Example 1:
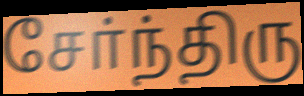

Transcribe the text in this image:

சேர்ந்திரு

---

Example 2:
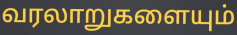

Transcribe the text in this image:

வரலாறுகளையும்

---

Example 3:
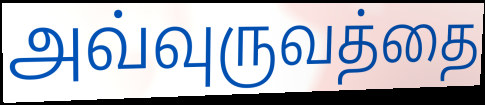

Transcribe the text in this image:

அவ்வுருவத்தை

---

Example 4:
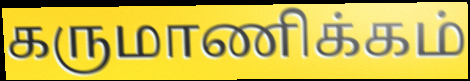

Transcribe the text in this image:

கருமாணிக்கம்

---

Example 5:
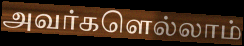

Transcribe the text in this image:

அவர்களெல்லாம்